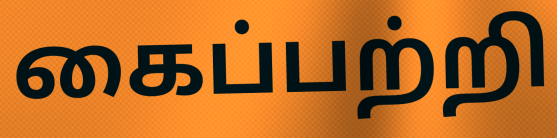
கைப்பற்றி